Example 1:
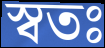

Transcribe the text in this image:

স্বতঃ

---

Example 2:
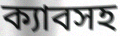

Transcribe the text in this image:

ক্যাবসহ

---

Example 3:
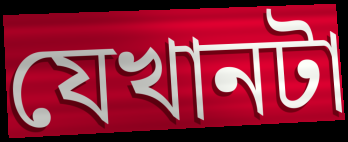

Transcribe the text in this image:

যেখানটা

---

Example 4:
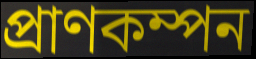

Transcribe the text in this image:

প্রাণকম্পন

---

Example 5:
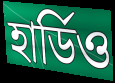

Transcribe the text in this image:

হার্ডিও